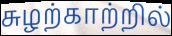
சுழற்காற்றில்